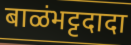
बाळंभट्टदादा